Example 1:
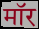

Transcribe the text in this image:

मॉर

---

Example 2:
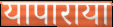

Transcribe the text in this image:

यापाराया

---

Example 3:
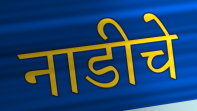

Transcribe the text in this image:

नाडीचे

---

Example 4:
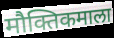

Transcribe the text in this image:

मौक्तिकमाला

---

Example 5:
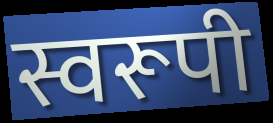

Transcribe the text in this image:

स्वरूपी